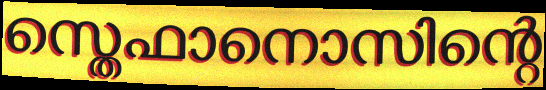
സ്തെഫാനൊസിന്റെ